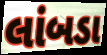
લાંબડા